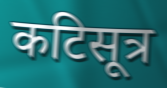
कटिसूत्र